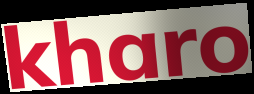
kharo